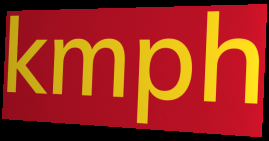
kmph